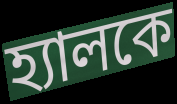
হ্যালকে